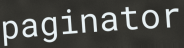
paginator